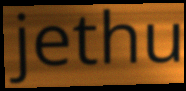
jethu